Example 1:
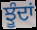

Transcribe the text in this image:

ਝੂੰਦਾਂ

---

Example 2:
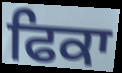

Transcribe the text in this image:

ਫਿਕਾ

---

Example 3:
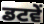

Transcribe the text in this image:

ਡਟਵੇਂ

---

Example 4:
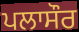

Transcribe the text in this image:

ਪਲਾਸੌਰ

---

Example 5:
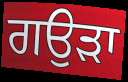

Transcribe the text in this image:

ਗਉੜਾ